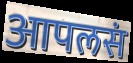
आपलसं